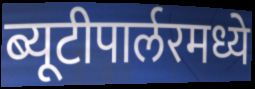
ब्यूटीपार्लरमध्ये